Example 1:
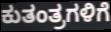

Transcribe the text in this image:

ಕುತಂತ್ರಗಳಿಗೆ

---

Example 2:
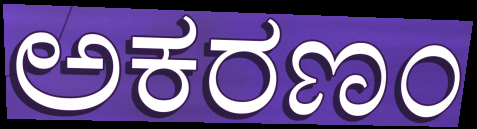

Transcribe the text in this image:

ಅಕರಣಂ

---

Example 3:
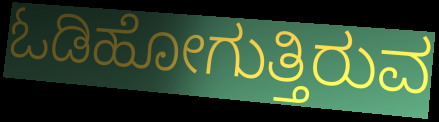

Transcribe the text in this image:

ಓಡಿಹೋಗುತ್ತಿರುವ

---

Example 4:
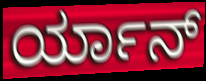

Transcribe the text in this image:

ರ್ಯಾನ್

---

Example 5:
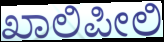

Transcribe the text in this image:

ಖಾಲಿಪೀಲಿ